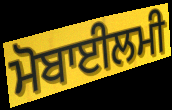
ਮੋਬਾਈਲਮੀ